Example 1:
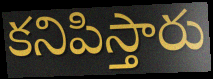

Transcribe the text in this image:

కనిపిస్తారు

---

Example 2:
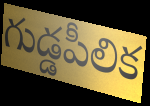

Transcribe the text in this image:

గుడ్డపీలిక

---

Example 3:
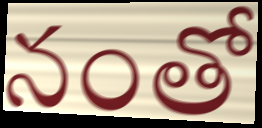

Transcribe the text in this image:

నంతో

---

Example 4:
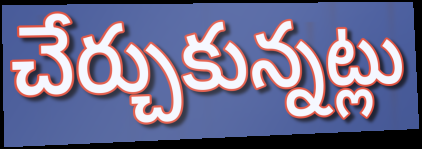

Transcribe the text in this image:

చేర్చుకున్నట్లు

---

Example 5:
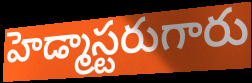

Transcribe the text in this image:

హెడ్మాస్టరుగారు